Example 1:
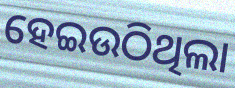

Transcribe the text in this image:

ହେଇଉଠିଥିଲା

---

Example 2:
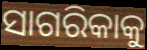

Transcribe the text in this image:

ସାଗରିକାକୁ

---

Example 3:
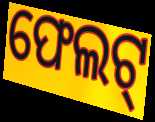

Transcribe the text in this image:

ଫେଲଟ୍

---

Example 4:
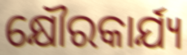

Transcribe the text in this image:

କ୍ଷୌରକାର୍ଯ୍ୟ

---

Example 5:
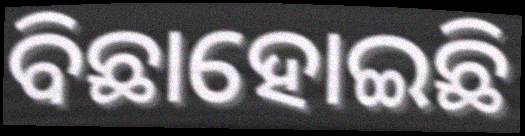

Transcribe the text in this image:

ବିଛାହୋଇଛି